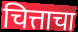
चित्ताचा